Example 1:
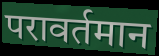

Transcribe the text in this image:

परावर्तमान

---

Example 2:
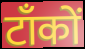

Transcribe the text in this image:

टाँकों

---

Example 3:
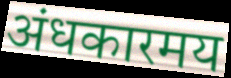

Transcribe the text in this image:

अंधकारमय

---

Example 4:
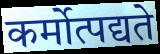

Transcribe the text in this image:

कर्मोत्पद्यते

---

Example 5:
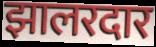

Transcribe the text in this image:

झालरदार